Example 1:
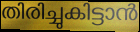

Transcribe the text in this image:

തിരിച്ചുകിട്ടാൻ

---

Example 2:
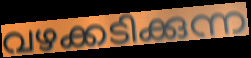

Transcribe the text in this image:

വഴക്കടിക്കുന്ന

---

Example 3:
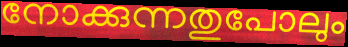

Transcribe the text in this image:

നോക്കുന്നതുപോലും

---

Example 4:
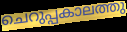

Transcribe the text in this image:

ചെറുപ്പകാലത്തു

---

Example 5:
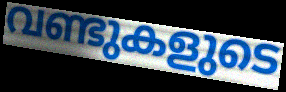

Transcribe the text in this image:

വണ്ടുകളുടെ